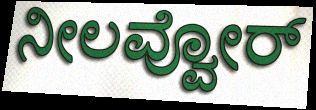
ನೀಲವ್ವೋರ್